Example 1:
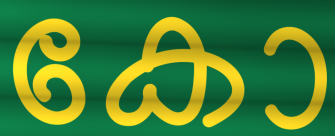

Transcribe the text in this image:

കോ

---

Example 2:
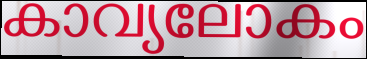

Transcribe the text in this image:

കാവ്യലോകം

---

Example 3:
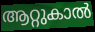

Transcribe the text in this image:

ആറ്റുകാൽ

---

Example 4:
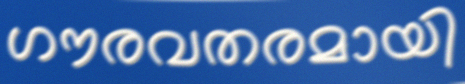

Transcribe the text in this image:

ഗൗരവതരമായി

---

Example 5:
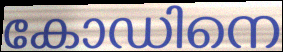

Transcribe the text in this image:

കോഡിനെ